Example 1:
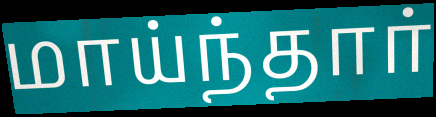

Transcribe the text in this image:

மாய்ந்தார்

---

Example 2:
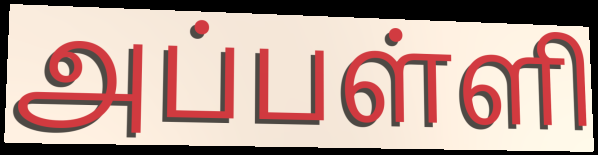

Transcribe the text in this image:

அப்பள்ளி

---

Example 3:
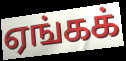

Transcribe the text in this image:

ஏங்கக்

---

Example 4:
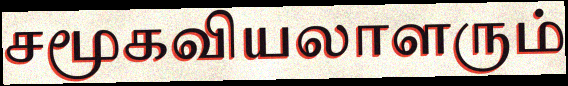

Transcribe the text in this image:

சமூகவியலாளரும்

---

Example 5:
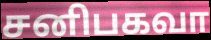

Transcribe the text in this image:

சனிபகவா